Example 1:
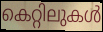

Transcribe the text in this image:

കെറ്റിലുകൾ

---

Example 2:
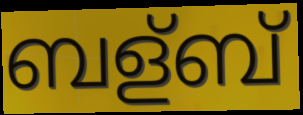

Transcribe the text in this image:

ബള്ബ്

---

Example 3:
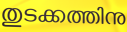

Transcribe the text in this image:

തുടക്കത്തിനു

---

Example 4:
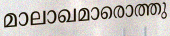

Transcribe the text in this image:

മാലാഖമാരൊത്തു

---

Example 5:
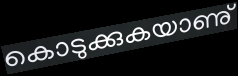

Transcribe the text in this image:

കൊടുക്കുകയാണു്